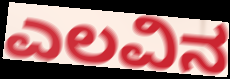
ಎಲವಿನ